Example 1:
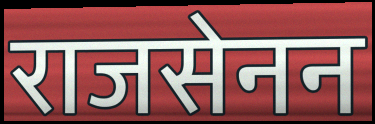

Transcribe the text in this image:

राजसेनन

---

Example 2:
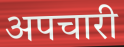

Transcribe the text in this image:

अपचारी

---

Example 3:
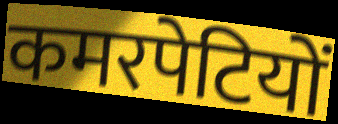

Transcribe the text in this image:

कमरपेटियों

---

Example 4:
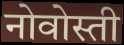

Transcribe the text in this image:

नोवोस्ती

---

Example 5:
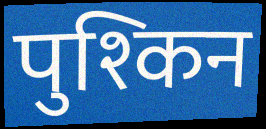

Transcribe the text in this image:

पुश्किन